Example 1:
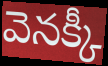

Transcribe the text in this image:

వెనక్కీ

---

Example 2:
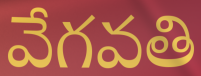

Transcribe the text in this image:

వేగవతి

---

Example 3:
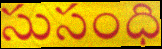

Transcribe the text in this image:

సుసంధి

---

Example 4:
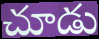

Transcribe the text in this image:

చూడు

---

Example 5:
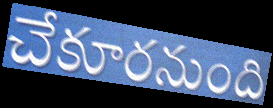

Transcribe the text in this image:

చేకూరనుంది